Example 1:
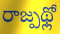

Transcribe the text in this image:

రాజ్పథ్లో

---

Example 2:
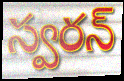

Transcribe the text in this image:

స్వరన్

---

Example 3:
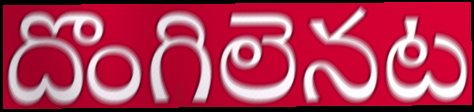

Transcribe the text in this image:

దొంగిలెనట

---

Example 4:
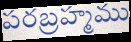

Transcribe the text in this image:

పరబ్రహ్మము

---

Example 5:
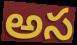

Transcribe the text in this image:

అస